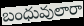
బంధువులారా